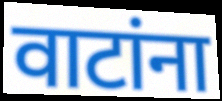
वाटांना